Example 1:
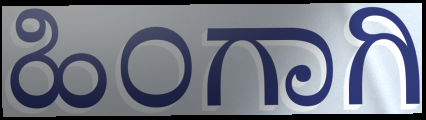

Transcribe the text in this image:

ಹಿಂಗಾಗಿ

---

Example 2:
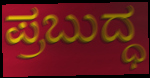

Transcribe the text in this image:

ಪ್ರಬುದ್ಧ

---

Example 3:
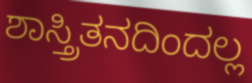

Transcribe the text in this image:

ಶಾಸ್ತ್ರಿತನದಿಂದಲ್ಲ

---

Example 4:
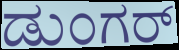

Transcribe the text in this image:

ಡುಂಗರ್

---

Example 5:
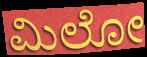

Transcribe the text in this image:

ಮಿಲೋ